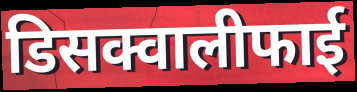
डिसक्वालीफाई